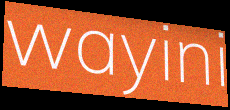
wayini